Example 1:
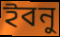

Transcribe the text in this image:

ইবনু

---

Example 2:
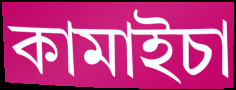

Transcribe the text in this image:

কামাইচা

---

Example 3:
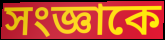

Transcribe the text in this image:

সংজ্ঞাকে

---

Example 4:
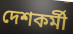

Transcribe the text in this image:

দেশকর্মী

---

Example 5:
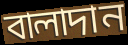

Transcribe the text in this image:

বালাদান